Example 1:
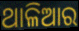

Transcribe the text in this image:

ଥାଳିଆର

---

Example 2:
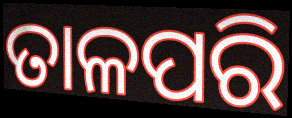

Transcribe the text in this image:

ତାଳପରି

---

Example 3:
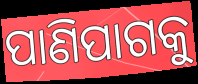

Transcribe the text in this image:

ପାଣିପାଗକୁ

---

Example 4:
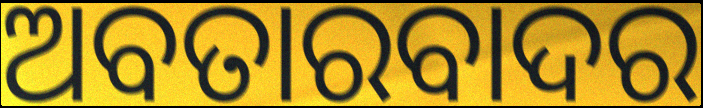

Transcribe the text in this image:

ଅବତାରବାଦର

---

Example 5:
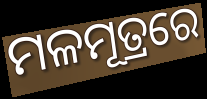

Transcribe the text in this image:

ମଳମୂତ୍ରରେ